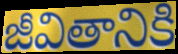
జీవితానికి